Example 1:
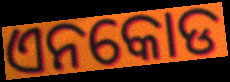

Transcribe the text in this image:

ଏନକୋଡ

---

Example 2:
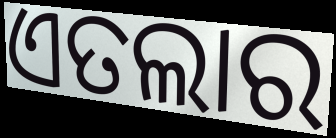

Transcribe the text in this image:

ଏତଲାର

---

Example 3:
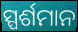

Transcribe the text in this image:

ସ୍ପର୍ଶମାନ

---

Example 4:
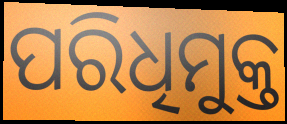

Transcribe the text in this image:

ପରିଧିମୁକ୍ତ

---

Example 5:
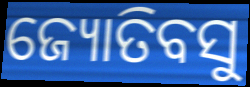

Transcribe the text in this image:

ଜ୍ୟୋତିବସୁ